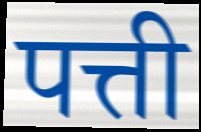
पत्ती